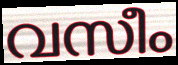
വസീം